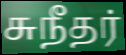
சுநீதர்